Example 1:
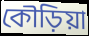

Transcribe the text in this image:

কৌড়িয়া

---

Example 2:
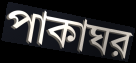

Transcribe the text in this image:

পাকাঘর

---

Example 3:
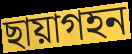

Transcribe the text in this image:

ছায়াগহন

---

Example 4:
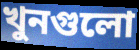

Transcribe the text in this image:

খুনগুলো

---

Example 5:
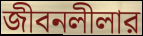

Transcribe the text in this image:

জীবনলীলার